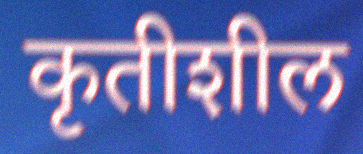
कृतीशील